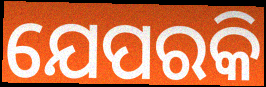
ଯେପରକି